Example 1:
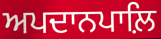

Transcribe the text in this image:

ਅਪਦਾਨਪਾਲ਼ਿ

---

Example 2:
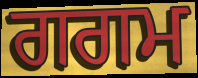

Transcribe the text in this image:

ਗਗਮ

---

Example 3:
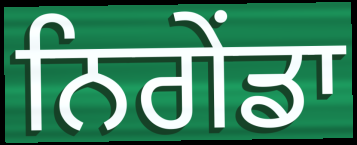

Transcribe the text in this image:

ਨਿਗੇਂਡਾ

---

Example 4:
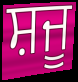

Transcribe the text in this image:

ਸ਼ਜੂ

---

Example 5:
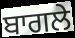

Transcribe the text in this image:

ਬਾਗਲੇ